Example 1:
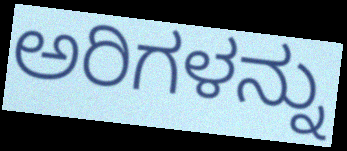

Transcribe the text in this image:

ಅರಿಗಳನ್ನು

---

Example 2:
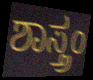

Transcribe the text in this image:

ಶಾಸ್ತ್ರಂ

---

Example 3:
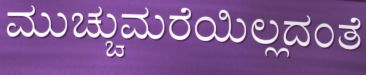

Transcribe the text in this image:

ಮುಚ್ಚುಮರೆಯಿಲ್ಲದಂತೆ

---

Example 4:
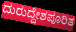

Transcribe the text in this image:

ದುರುದ್ದೇಶಪೂರಿತ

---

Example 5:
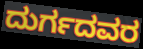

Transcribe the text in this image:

ದುರ್ಗದವರ